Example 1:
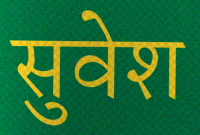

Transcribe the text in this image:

सुवेश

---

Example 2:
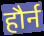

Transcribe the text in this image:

हौर्न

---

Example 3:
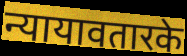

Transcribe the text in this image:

न्यायावतारके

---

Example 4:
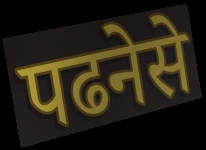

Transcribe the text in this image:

पढनेसे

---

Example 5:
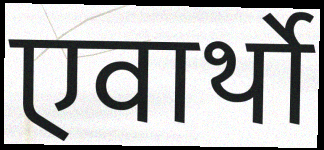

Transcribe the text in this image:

एवार्थो